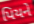
પિયને